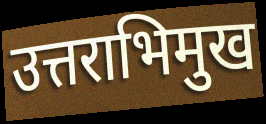
उत्तराभिमुख